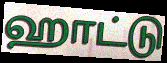
ஹாட்டு